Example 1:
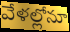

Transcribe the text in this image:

వేళల్లోనూ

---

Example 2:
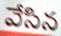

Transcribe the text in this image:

వేసిన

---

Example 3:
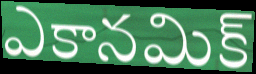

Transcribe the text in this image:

ఎకానమిక్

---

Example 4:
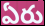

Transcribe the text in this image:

ఏరు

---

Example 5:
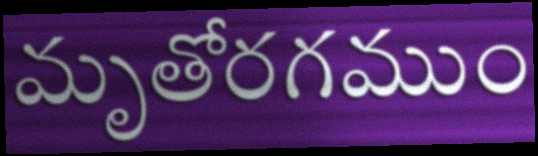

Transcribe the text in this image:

మృతోరగముం